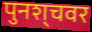
पुनश्चवर